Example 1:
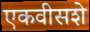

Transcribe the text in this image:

एकवीसशे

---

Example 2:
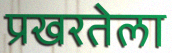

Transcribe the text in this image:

प्रखरतेला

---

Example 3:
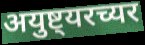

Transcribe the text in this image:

अयुष्ट्यरच्यर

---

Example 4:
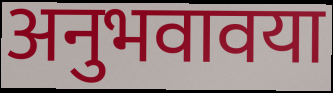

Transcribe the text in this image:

अनुभवावया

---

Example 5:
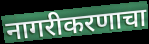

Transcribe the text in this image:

नागरीकरणाचा